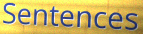
Sentences